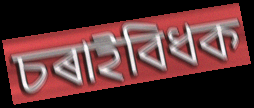
চৰাইবিধক